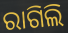
ରାଗିଲି